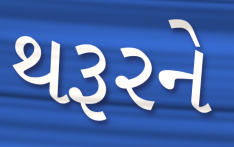
થરૂરને